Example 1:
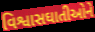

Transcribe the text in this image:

વિશ્વાસઘાતીઓને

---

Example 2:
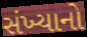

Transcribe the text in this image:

સંખ્યાનો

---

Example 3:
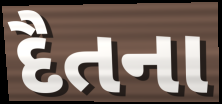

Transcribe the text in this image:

દૈતના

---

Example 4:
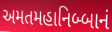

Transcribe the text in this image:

અમતમહાનિબ્બાનં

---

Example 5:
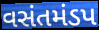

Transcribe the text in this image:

વસંતમંડપ